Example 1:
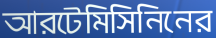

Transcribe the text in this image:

আরটেমিসিনিনের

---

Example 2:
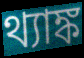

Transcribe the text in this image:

থ্যাঙ্ক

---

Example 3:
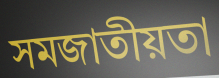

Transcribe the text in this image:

সমজাতীয়তা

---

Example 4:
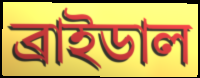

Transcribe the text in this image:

ব্রাইডাল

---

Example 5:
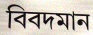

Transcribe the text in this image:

বিবদমান